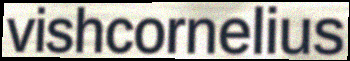
vishcornelius